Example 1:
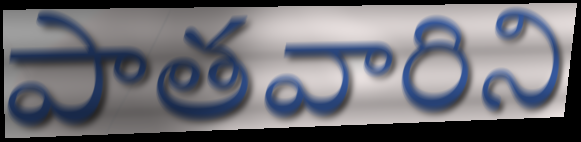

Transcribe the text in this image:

పాతవారిని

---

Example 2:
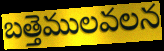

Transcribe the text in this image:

బత్తెములవలన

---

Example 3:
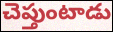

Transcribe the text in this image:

చెప్తుంటాడు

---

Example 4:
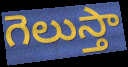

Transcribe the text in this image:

గెలుస్తా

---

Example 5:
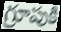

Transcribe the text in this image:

గ్రూపుకి